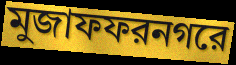
মুজাফফরনগরে